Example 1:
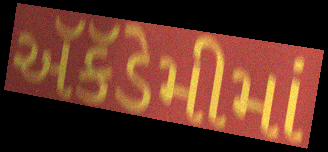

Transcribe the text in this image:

ઍકૅડેમીમાં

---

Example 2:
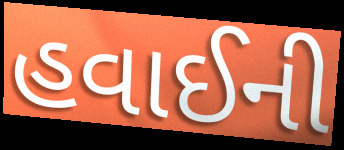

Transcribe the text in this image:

હવાઈની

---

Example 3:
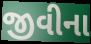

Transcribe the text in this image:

જીવીના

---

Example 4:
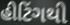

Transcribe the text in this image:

હીટિંગથી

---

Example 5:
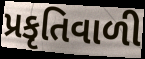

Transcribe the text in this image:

પ્રકૃતિવાળી